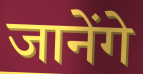
जानेंगे